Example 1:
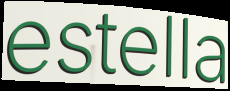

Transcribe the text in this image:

estella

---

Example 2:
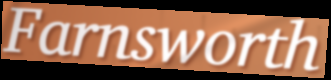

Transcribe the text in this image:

Farnsworth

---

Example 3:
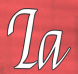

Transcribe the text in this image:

Ia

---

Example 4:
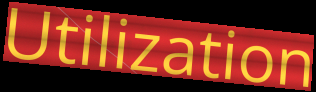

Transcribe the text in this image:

Utilization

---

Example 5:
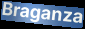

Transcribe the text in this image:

Braganza